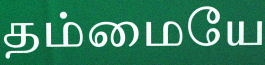
தம்மையே